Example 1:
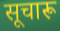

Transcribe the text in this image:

सूचारू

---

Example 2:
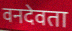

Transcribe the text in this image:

वनदेवता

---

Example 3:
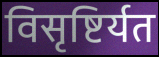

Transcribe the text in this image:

विसृष्टिर्यत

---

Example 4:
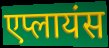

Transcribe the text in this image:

एप्लायंस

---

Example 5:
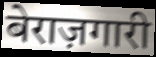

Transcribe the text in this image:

बेराज़गारी